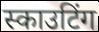
स्काउटिंग